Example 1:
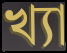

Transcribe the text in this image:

খ্যা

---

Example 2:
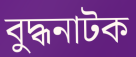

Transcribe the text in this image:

বুদ্ধনাটক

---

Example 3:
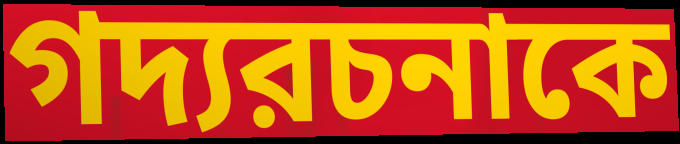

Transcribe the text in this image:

গদ্যরচনাকে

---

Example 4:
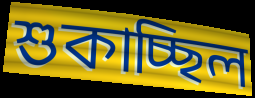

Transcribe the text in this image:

শুকাচ্ছিল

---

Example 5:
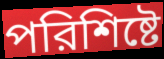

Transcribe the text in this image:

পরিশিষ্টে